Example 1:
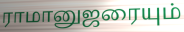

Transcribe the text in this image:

ராமானுஜரையும்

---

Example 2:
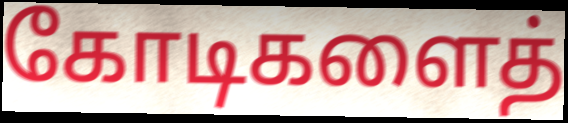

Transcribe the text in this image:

கோடிகளைத்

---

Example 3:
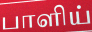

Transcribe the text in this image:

பாளிய்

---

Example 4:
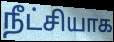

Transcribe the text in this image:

நீட்சியாக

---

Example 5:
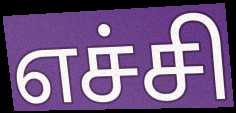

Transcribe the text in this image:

எச்சி